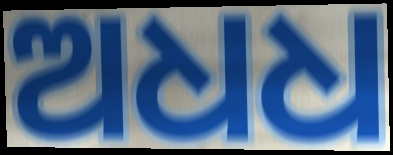
ଅଧଧ